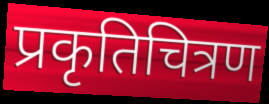
प्रकृतिचित्रण